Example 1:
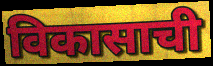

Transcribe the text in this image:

विकासाची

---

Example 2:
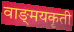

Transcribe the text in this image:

वाङ्‌मयकृती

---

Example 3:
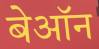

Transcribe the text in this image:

बेऑन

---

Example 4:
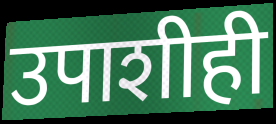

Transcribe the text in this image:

उपाशीही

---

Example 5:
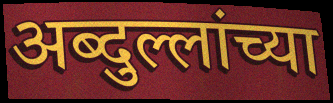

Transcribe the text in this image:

अब्दुल्लांच्या